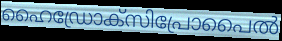
ഹൈഡ്രോക്സിപ്രോപൈൽ